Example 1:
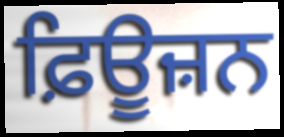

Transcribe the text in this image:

ਫ਼ਿਊਜ਼ਨ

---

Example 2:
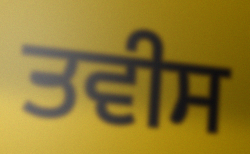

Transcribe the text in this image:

ਤਵੀਸ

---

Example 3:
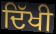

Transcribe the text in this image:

ਦਿੱਖੀ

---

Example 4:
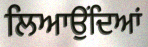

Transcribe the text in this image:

ਲਿਆਉਂਦਿਆਂ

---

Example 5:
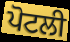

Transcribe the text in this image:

ਪੋਟਲੀ